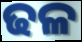
ଢଳ